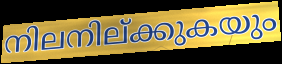
നിലനില്ക്കുകയും